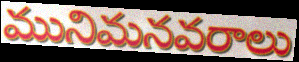
మునిమనవరాలు